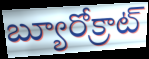
బ్యూరోక్రాట్